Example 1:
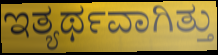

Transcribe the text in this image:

ಇತ್ಯರ್ಥವಾಗಿತ್ತು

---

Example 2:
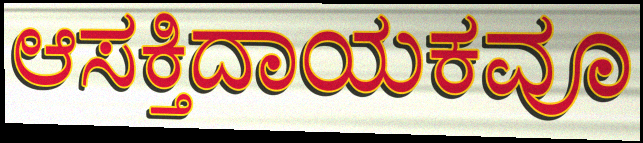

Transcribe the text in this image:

ಆಸಕ್ತಿದಾಯಕವೂ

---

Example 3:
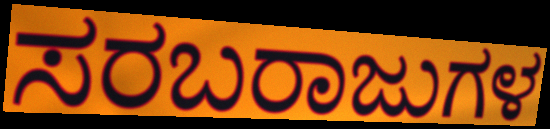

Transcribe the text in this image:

ಸರಬರಾಜುಗಳ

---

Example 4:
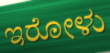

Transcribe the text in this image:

ಇರೋಳು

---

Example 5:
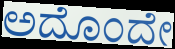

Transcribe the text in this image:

ಅದೊಂದೇ